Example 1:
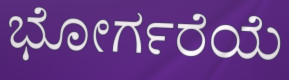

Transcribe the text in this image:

ಭೋರ್ಗರೆಯೆ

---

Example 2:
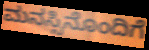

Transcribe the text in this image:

ಮನಸ್ಸಿನೊಂದಿಗೆ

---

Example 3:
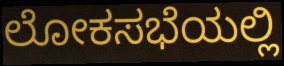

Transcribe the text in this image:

ಲೋಕಸಭೆಯಲ್ಲಿ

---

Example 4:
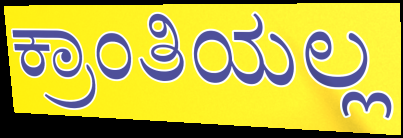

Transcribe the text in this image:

ಕ್ರಾಂತಿಯಲ್ಲ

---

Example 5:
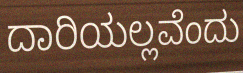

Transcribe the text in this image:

ದಾರಿಯಲ್ಲವೆಂದು